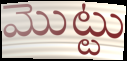
మొట్టు